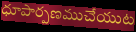
ధూపార్పణముచేయుట